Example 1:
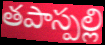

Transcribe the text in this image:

తపాస్పల్లి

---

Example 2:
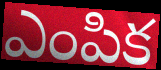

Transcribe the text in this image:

ఎంపిక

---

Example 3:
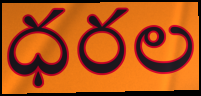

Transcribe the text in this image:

ధరల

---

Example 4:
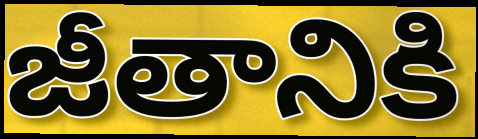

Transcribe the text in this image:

జీతానికి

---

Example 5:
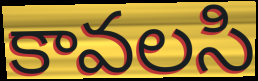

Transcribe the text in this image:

కావలసి